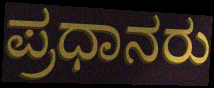
ಪ್ರಧಾನರು